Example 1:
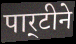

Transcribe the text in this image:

पार्टीने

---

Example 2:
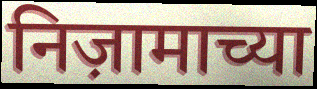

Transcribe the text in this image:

निज़ामाच्या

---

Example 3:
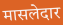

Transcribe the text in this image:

मासलेदार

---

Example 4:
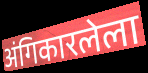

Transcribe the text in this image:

अंगिकारलेला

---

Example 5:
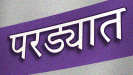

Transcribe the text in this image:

परड्यात